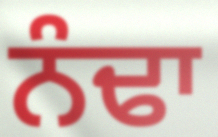
ਨੰਢਾ